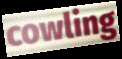
cowling